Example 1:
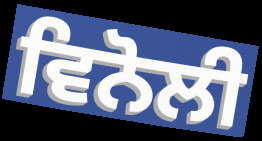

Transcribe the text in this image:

ਵਿਨੋਲੀ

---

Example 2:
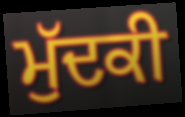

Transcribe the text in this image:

ਮੁੱਦਕੀ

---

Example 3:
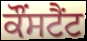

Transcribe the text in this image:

ਕੌਂਸਟੈਂਟ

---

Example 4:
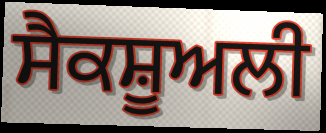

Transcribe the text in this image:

ਸੈਕਸ਼ੂਅਲੀ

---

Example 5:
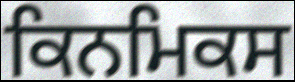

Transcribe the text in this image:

ਕਿਨਮਿਕਸ